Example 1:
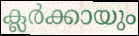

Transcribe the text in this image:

ക്ലർക്കായും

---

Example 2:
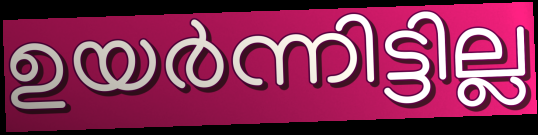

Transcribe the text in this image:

ഉയർന്നിട്ടില്ല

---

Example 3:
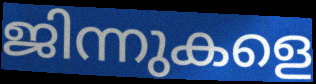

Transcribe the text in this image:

ജിന്നുകളെ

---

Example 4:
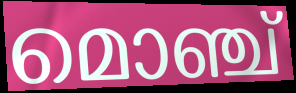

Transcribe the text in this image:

മൊഞ്ച്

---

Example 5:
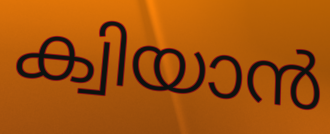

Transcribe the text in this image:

ക്വിയാൻ